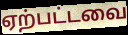
ஏற்பட்டவை